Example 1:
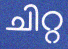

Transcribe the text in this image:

ചിറ്റ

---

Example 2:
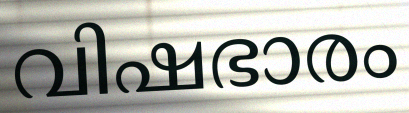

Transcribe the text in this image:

വിഷഭാരം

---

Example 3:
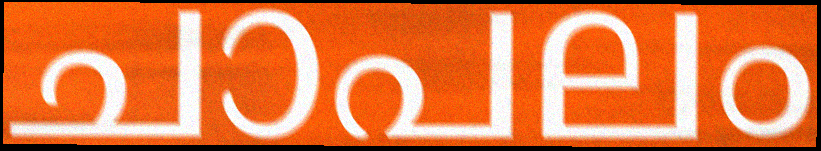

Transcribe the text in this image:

ചാപലം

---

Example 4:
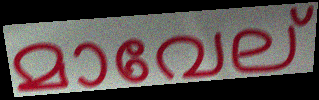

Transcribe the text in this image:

മാവേല്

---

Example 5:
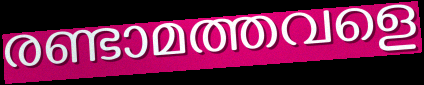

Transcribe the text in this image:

രണ്ടാമത്തവളെ